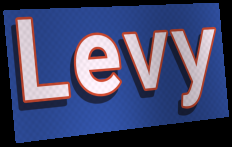
Levy